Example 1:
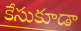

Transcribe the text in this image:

కేసుకూడా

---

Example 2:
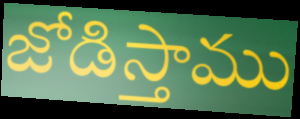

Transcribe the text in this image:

జోడిస్తాము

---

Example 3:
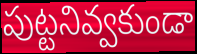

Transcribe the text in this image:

పుట్టనివ్వకుండా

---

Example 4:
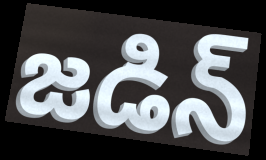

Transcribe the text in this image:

జడిన్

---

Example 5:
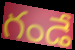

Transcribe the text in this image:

గండే